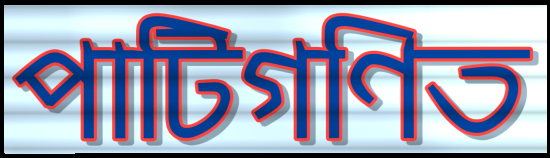
পাটিগণিত